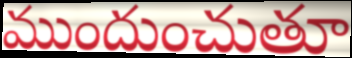
ముందుంచుతూ